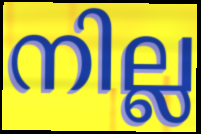
നില്ല